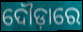
ଦୌଡ଼ାରେ